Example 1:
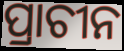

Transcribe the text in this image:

ପ୍ରାଚୀନ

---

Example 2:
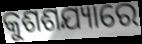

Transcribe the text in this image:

କୁଶଶଯ୍ୟାରେ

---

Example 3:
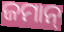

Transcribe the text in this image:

ଜମାନ୍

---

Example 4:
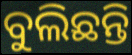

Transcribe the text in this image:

ବୁଲିଛନ୍ତି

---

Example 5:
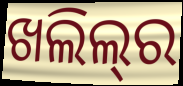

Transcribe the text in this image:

ଖଲିଲ୍‍ର